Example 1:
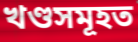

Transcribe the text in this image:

খণ্ডসমূহত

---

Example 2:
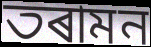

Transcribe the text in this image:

তৰামন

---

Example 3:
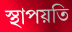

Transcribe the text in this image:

স্থাপয়তি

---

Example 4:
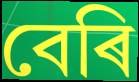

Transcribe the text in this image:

বেৰি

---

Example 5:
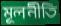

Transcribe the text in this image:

মূলনীতি